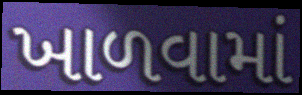
ખાળવામાં